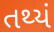
તથ્યં